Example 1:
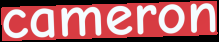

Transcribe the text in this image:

cameron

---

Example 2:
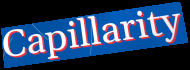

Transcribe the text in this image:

Capillarity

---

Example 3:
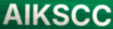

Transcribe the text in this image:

AIKSCC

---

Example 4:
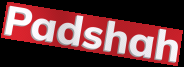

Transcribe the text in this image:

Padshah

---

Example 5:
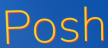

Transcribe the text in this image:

Posh